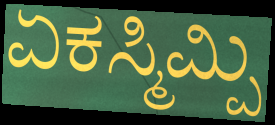
ಏಕಸ್ಮಿಮ್ಪಿ